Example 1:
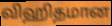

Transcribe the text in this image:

விஹிதமான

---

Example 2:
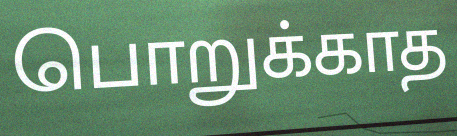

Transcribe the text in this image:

பொறுக்காத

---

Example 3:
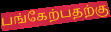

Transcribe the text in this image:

பங்கேற்பதற்கு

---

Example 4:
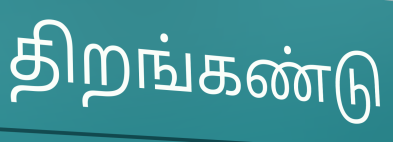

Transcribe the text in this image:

திறங்கண்டு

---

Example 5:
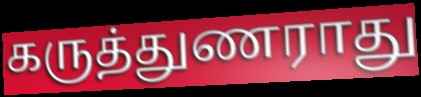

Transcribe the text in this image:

கருத்துணராது